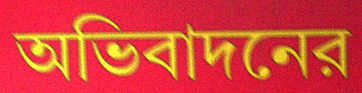
অভিবাদনের